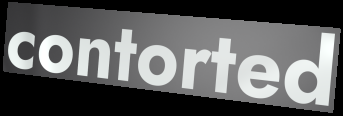
contorted